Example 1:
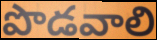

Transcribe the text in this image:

పొడవాలి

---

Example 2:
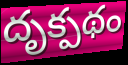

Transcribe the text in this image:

దృక్పథం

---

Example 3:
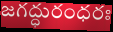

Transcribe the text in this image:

జగద్ధురంధరః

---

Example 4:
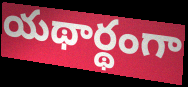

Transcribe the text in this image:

యథార్థంగా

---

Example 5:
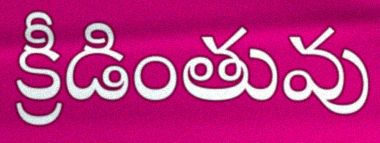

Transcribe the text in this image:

క్రీడింతువు